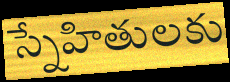
స్నేహితులకు